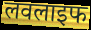
लवलाइफ